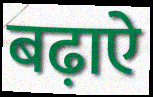
बढ़ाऐ